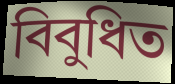
বিবুধিত